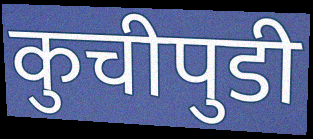
कुचीपुडी